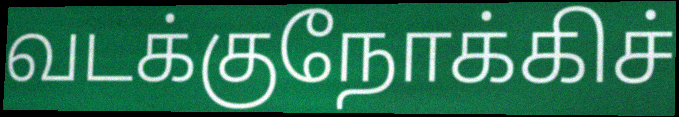
வடக்குநோக்கிச்